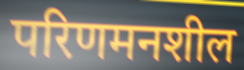
परिणमनशील